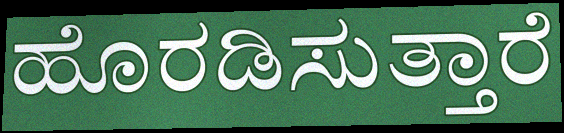
ಹೊರಡಿಸುತ್ತಾರೆ